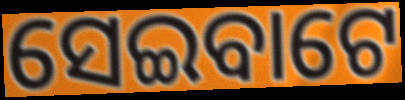
ସେଇବାଟେ